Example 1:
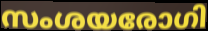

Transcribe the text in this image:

സംശയരോഗി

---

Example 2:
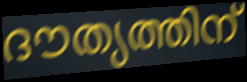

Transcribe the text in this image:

ദൗത്യത്തിന്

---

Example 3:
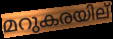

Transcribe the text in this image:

മറുകരയില്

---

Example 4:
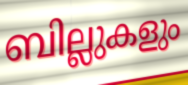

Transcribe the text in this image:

ബില്ലുകളും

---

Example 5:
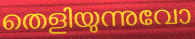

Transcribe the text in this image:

തെളിയുന്നുവോ